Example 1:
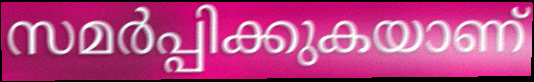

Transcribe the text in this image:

സമർപ്പിക്കുകയാണ്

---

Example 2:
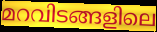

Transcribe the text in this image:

മറവിടങ്ങളിലെ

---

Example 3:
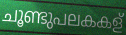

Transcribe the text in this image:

ചൂണ്ടുപലകകള്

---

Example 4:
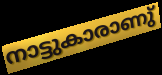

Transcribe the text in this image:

നാട്ടുകാരാണു്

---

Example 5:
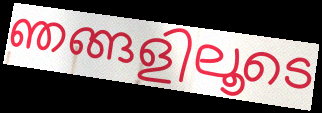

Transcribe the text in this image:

ഞങ്ങളിലൂടെ